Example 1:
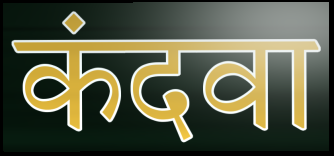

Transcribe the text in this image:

कंदवा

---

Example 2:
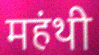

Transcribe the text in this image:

महंथी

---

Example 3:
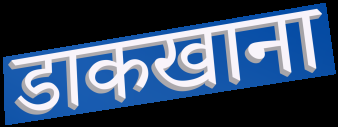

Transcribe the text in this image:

डाकखाना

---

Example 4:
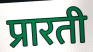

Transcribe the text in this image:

प्रारती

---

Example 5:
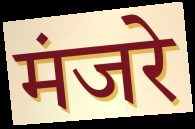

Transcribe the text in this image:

मंजरे